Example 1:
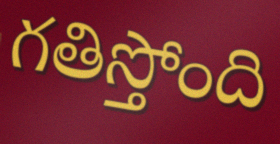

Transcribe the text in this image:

గతిస్తోంది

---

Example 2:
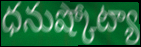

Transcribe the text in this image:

ధనుష్కోట్యా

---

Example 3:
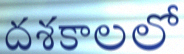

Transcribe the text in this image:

దశకాలలో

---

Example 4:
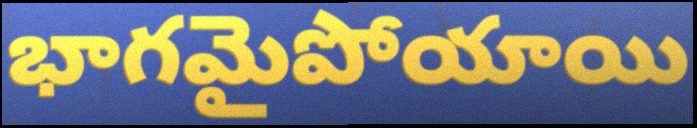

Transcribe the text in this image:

భాగమైపోయాయి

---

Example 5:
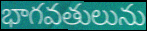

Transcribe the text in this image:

భాగవతులును